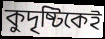
কুদৃষ্টিকেই